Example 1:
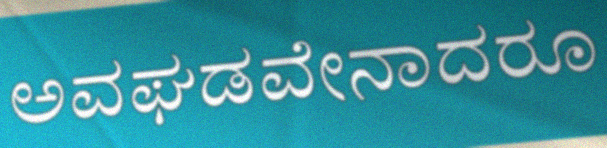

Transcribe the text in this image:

ಅವಘಡವೇನಾದರೂ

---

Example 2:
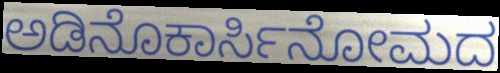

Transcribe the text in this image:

ಅಡಿನೊಕಾರ್ಸಿನೋಮದ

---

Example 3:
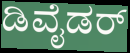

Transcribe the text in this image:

ಡಿವೈಡರ್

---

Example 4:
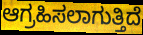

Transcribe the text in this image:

ಆಗ್ರಹಿಸಲಾಗುತ್ತಿದೆ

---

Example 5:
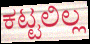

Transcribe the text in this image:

ಕಟ್ಟಲಿಲ್ಲ